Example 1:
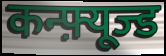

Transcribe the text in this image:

कन्फ़्यूज्ड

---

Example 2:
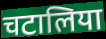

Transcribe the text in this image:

चटालिया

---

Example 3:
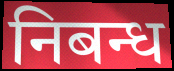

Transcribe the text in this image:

निबन्‍ध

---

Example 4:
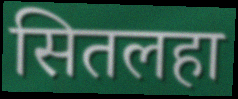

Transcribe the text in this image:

सितलहा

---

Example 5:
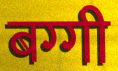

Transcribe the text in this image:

बग्‍गी